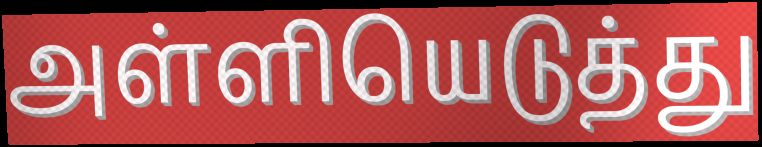
அள்ளியெடுத்து